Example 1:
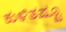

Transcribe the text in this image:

ಕುಳಿತಷ್ಟೂ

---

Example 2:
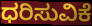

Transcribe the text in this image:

ಧರಿಸುವಿಕೆ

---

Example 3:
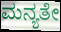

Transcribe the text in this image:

ಮನ್ಯತೇ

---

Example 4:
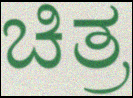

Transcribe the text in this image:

ಚಿತ್ರ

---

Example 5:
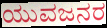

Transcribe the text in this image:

ಯುವಜನರ